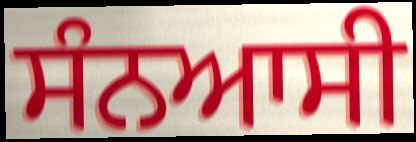
ਸੰਨਆਸੀ